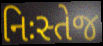
નિઃસ્તેજ